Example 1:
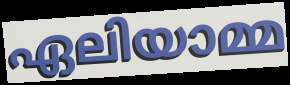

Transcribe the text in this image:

ഏലിയാമ്മ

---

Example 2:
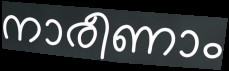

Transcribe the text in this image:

നാരീണാം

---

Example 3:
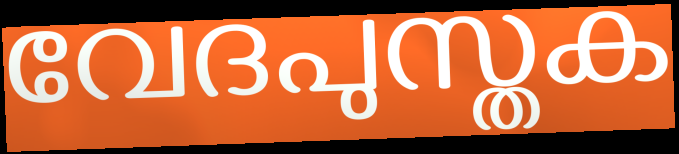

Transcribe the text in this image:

വേദപുസ്തക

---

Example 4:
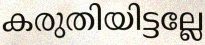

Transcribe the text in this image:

കരുതിയിട്ടല്ലേ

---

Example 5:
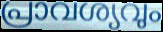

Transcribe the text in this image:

പ്രാവശ്യവും